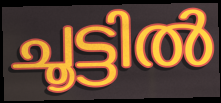
ചൂട്ടിൽ